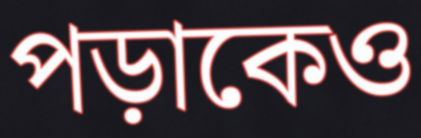
পড়াকেও